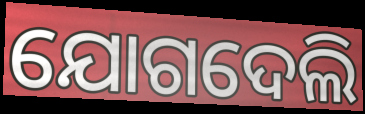
ଯୋଗଦେଲି